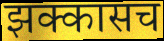
झक्कासच